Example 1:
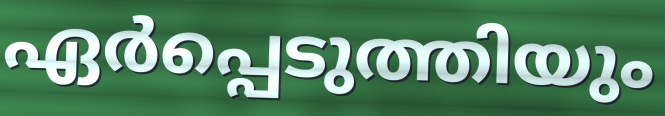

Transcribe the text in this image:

ഏർപ്പെടുത്തിയും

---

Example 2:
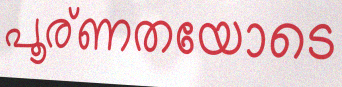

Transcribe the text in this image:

പൂര്ണതയോടെ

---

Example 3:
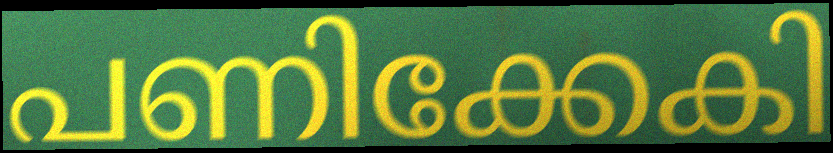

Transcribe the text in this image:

പണിക്കേകി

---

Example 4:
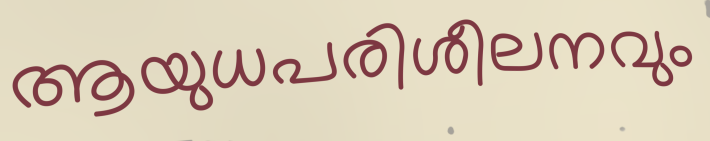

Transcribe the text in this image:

ആയുധപരിശീലനവും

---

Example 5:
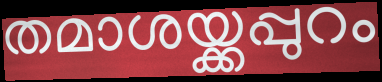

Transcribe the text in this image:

തമാശയ്ക്കപ്പുറം